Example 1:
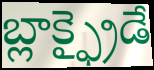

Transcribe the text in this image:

బ్లాక్ఫ్రైడే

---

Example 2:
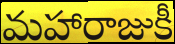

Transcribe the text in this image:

మహారాజుకీ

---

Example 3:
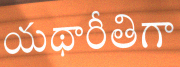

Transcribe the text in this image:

యథారీతిగా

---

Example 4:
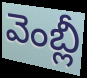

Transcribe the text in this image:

వెంబ్లీ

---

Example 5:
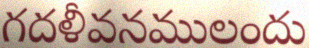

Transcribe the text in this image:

గదళీవనములందు